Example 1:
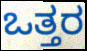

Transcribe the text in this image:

ಒತ್ತರ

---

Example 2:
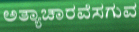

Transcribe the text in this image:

ಅತ್ಯಾಚಾರವೆಸಗುವ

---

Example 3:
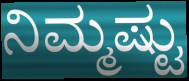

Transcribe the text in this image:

ನಿಮ್ಮಷ್ಟು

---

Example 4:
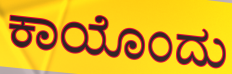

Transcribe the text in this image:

ಕಾಯೊಂದು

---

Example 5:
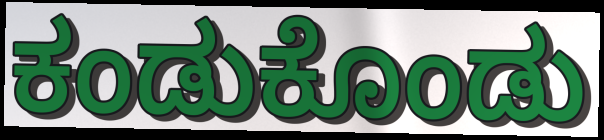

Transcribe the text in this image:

ಕಂಡುಕೊಂಡು